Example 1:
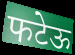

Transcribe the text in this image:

फटेऊ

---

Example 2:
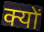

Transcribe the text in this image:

क्यों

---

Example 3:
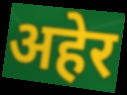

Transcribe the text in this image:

अहेर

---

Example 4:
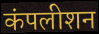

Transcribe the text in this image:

कंपलीशन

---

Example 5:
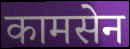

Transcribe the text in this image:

कामसेन